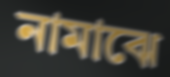
নামাঝে